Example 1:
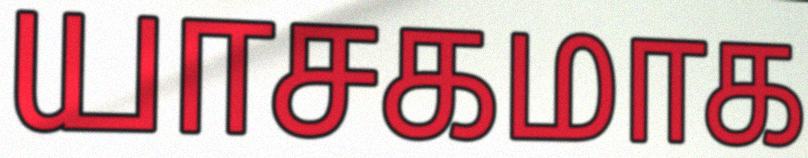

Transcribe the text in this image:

யாசகமாக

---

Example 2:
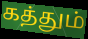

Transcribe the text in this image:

கத்தும்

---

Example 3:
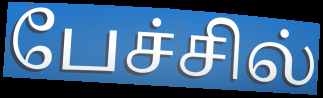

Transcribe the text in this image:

பேச்சில்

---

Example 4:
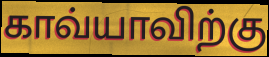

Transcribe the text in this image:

காவ்யாவிற்கு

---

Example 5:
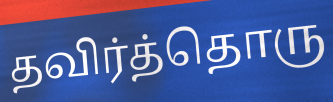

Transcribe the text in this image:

தவிர்த்தொரு